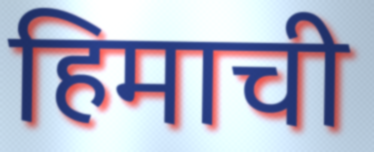
हिमाची